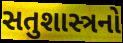
સતુશાસ્ત્રનો